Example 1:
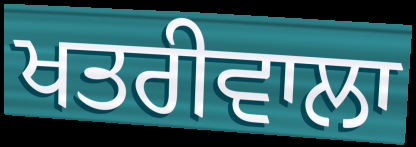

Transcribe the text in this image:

ਖਤਰੀਵਾਲਾ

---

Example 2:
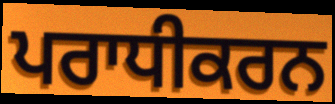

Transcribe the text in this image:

ਪਰਾਧੀਕਰਨ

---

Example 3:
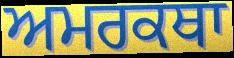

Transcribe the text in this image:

ਅਮਰਕਥਾ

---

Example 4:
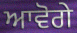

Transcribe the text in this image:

ਆਵੋਗੇ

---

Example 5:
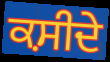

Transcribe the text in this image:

ਕ਼ਸੀਦੇ